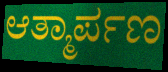
ಆತ್ಮಾರ್ಪಣ